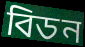
বিডন